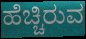
ಹೆಚ್ಚಿರುವ